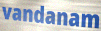
vandanam